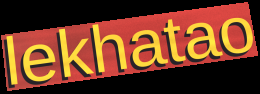
lekhatao